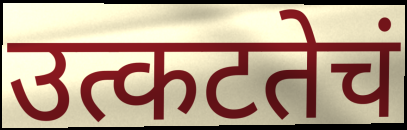
उत्कटतेचं